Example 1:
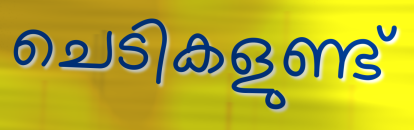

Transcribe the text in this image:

ചെടികളുണ്ട്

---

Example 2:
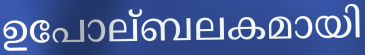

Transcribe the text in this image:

ഉപോല്ബലകമായി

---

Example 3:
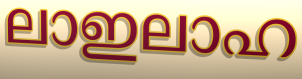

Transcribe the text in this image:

ലാഇലാഹ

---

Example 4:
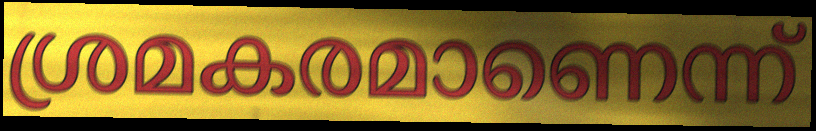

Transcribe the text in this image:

ശ്രമകരമാണെന്ന്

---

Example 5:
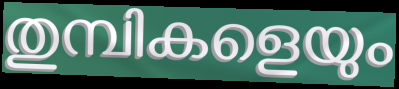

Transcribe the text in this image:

തുമ്പികളെയും